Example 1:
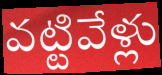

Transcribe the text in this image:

వట్టివేళ్లు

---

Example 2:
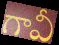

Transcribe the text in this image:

గావీ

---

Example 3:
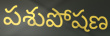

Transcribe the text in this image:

పశుపోషణ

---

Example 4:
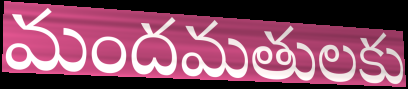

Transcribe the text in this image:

మందమతులకు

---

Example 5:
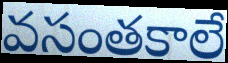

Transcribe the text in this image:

వసంతకాలే